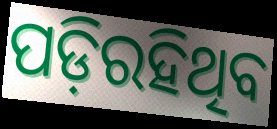
ପଡ଼ିରହିଥିବ